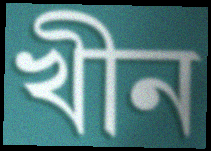
খীন